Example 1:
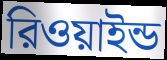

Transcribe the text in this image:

রিওয়াইন্ড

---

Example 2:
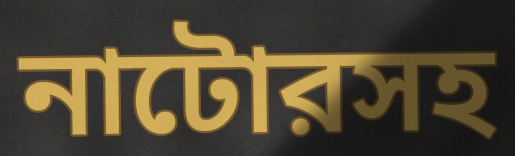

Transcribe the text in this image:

নাটোরসহ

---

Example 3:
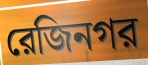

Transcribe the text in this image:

রেজিনগর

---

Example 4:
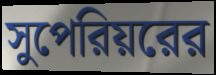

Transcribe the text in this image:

সুপেরিয়রের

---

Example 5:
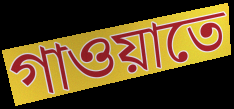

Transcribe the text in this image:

গাওয়াতে